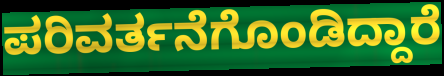
ಪರಿವರ್ತನೆಗೊಂಡಿದ್ದಾರೆ